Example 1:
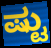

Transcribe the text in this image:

ಷ್ಟು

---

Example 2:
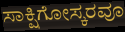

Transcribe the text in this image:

ಸಾಕ್ಷಿಗೋಸ್ಕರವೂ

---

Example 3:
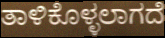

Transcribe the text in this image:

ತಾಳಿಕೊಳ್ಳಲಾಗದೆ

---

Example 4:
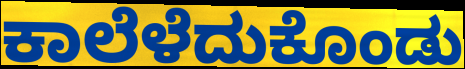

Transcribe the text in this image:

ಕಾಲೆಳೆದುಕೊಂಡು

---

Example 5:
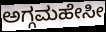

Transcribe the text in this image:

ಅಗ್ಗಮಹೇಸೀ